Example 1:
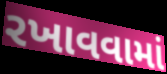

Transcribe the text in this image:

રખાવવામાં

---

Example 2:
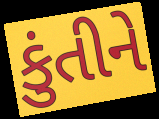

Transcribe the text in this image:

કુંતીને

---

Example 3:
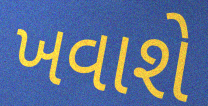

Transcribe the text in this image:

ખવાશે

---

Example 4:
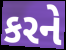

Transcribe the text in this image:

કરને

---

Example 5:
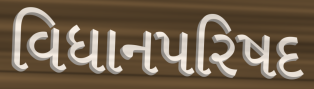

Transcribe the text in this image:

વિધાનપરિષદ